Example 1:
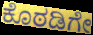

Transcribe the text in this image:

ಕೊಠಡಿಗೇ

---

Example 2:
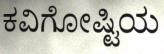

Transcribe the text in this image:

ಕವಿಗೋಷ್ಟಿಯ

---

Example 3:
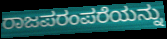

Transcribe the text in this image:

ರಾಜಪರಂಪರೆಯನ್ನು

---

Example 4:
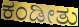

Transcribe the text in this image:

ಕಂಡೀತು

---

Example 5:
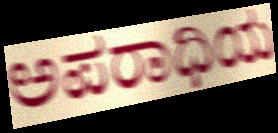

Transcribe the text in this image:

ಅಪರಾಧಿಯ